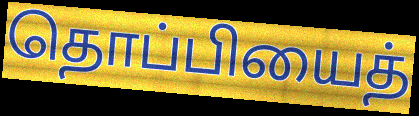
தொப்பியைத்